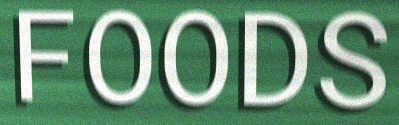
FOODS